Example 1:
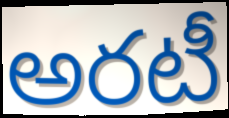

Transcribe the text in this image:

అరటీ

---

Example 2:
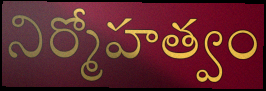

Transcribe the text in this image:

నిర్మోహత్వం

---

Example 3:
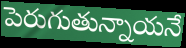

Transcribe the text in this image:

పెరుగుతున్నాయనే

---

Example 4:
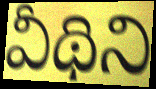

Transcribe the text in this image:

వీథిని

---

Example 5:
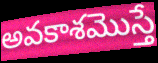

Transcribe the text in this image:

అవకాశమొస్తే